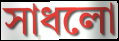
সাধলো